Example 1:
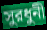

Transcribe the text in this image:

সুরধুনী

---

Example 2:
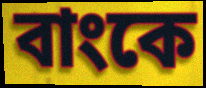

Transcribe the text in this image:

বাংকে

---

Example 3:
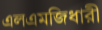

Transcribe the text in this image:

এলএমজিধারী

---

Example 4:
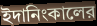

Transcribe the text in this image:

ইদানিংকালের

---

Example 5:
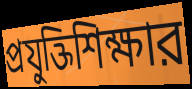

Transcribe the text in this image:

প্রযুক্তিশিক্ষার